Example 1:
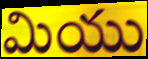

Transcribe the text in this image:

మియు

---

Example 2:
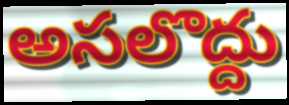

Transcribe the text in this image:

అసలొద్దు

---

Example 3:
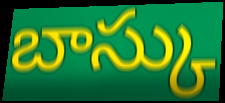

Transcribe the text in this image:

బాస్కు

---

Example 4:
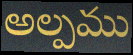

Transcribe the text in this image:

అల్పము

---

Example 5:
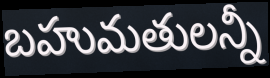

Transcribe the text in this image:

బహుమతులన్నీ